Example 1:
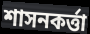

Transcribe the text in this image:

শাসনকৰ্ত্তা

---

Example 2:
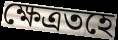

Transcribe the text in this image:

ক্ষেত্ৰতহে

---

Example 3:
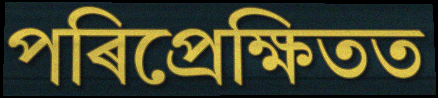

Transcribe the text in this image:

পৰিপ্ৰেক্ষিতত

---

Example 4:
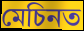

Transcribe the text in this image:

মেচিনত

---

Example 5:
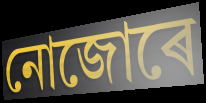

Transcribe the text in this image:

নোজোৰে